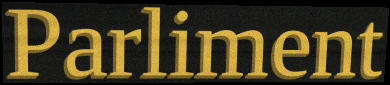
Parliment